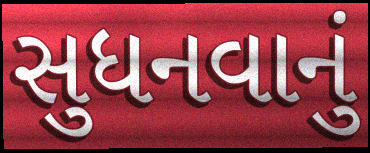
સુધનવાનું